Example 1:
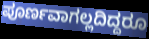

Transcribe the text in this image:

ಪೂರ್ಣವಾಗಲ್ಲದಿದ್ದರೂ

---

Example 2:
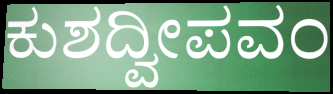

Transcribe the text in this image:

ಕುಶದ್ವೀಪವಂ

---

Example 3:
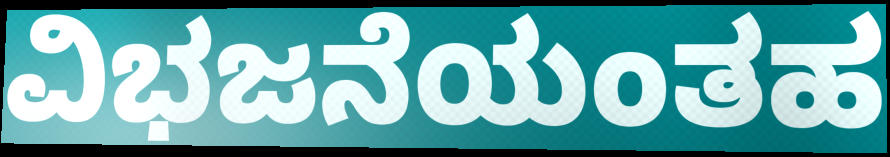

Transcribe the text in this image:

ವಿಭಜನೆಯಂತಹ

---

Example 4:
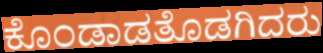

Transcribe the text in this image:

ಕೊಂಡಾಡತೊಡಗಿದರು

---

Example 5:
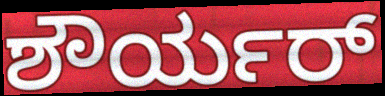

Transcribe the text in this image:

ಶೌರ್ಯರ್